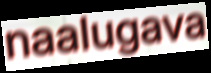
naalugava